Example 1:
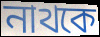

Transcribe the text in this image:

নাথকে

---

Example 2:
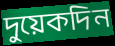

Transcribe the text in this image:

দুয়েকদিন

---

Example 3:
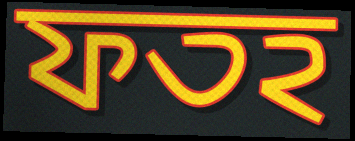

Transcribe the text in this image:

ফতহ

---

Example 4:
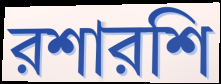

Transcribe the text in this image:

রশারশি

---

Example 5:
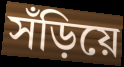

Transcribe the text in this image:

সঁড়িয়ে